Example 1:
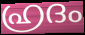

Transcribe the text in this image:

ഹ്രദം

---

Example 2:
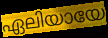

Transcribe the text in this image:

ഏലിയായേ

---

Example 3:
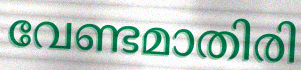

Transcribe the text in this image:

വേണ്ടമാതിരി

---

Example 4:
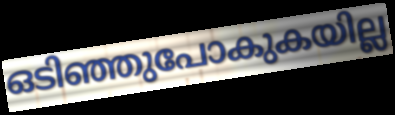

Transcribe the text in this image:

ഒടിഞ്ഞുപോകുകയില്ല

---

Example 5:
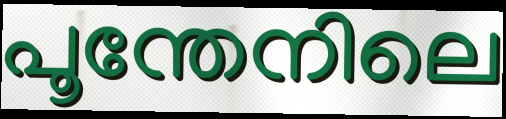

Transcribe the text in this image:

പൂന്തേനിലെ